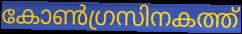
കോൺഗ്രസിനകത്ത്